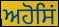
ਅਹੋਸਿਂ